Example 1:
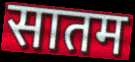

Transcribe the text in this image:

सातम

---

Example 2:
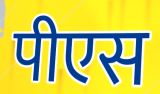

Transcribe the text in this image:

पीएस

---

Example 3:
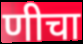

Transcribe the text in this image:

णीचा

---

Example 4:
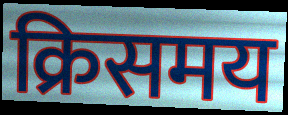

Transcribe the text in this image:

क्रिसमय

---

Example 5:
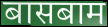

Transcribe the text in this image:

बासबाम